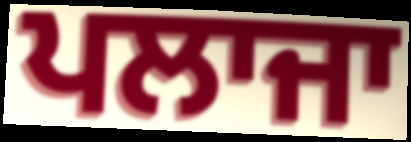
ਪਲਾਜਾ